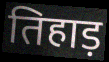
तिहाड़